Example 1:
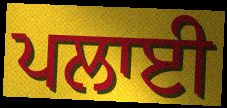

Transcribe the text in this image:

ਪਲਾਈ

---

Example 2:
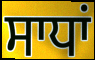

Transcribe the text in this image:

ਸਾਧਾਂ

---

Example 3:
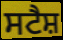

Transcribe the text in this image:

ਸਟੈਸ਼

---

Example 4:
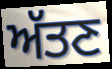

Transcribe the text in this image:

ਅੱਤਣ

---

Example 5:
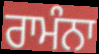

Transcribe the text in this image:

ਰਾਮੰਨਾ